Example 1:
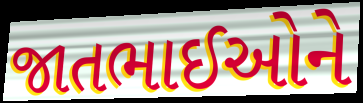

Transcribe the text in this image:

જાતભાઈઓને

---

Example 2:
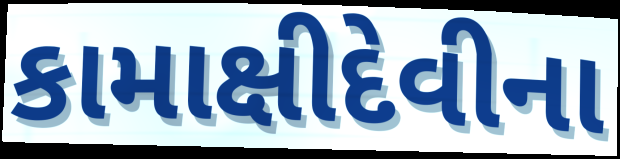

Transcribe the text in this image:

કામાક્ષીદેવીના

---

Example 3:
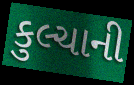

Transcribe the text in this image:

કુલ્ચાની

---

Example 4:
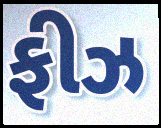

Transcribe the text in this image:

ફીઝ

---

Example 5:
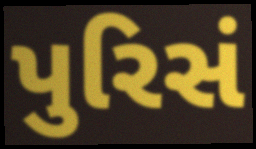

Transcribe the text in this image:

પુરિસં